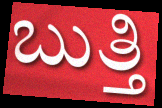
ಬುತ್ತಿ